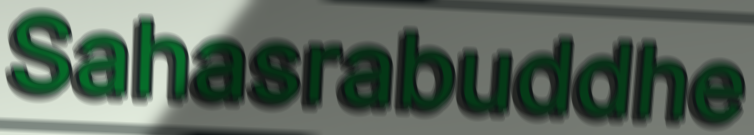
Sahasrabuddhe